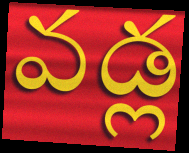
వడ్ల